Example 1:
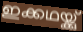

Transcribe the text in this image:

ഇക്കഥയ്ക്കു്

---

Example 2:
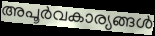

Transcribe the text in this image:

അപൂർവകാര്യങ്ങൾ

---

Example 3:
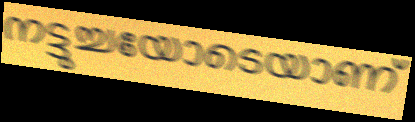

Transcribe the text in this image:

നട്ടുച്ചയോടെയാണ്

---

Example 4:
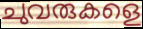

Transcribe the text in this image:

ചുവരുകളെ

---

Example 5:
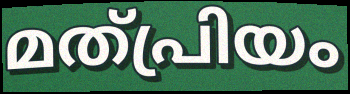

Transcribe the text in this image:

മത്പ്രിയം